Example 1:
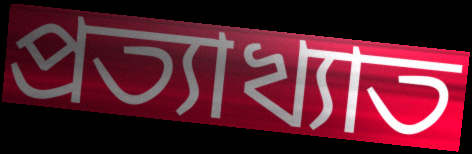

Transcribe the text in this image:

প্রত্যাখ্যাত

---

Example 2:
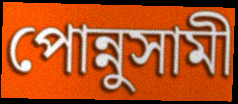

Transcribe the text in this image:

পোন্নুসামী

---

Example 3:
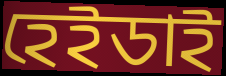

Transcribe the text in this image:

হেইডাই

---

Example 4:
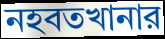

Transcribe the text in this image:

নহবতখানার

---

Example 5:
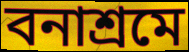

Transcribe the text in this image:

বনাশ্রমে